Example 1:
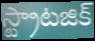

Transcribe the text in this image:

స్ట్రాటజిక్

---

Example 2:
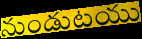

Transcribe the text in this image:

నుండుటయు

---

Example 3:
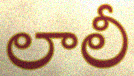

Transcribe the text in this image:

లాలీ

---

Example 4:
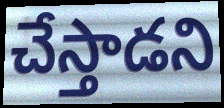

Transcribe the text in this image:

చేస్తాడని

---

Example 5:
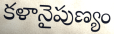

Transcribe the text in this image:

కళానైపుణ్యం